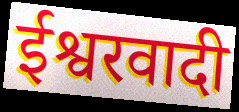
ईश्वरवादी